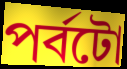
পৰ্বটো